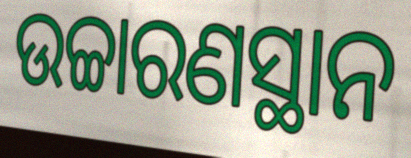
ଉଚ୍ଚାରଣସ୍ଥାନ